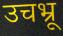
उचभ्रू